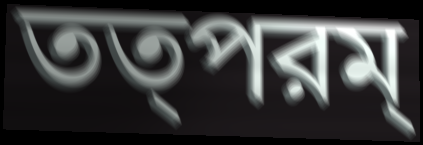
তত্পরম্